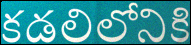
కడలిలోనికి